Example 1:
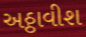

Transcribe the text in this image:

અઠ્ઠાવીશ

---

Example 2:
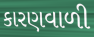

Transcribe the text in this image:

કારણવાળી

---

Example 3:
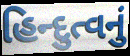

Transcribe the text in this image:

હિન્દુત્વનું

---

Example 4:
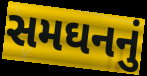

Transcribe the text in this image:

સમઘનનું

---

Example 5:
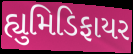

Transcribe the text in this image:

હ્યુમિડિફાયર